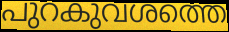
പുറകുവശത്തെ